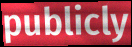
publicly